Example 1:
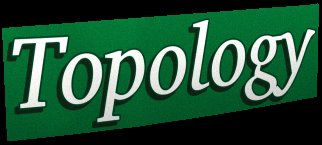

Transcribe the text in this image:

Topology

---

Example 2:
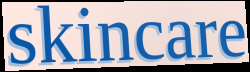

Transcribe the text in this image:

skincare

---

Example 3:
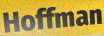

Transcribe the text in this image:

Hoffman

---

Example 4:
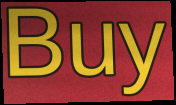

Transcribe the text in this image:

Buy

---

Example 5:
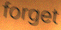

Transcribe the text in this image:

forget